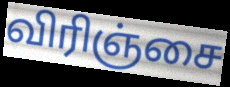
விரிஞ்சை